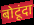
बोटूंदा